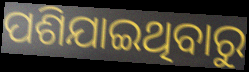
ପଶିଯାଇଥିବାରୁ